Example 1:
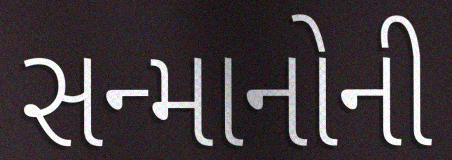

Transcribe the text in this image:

સન્માનોની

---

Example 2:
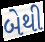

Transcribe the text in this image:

બેથી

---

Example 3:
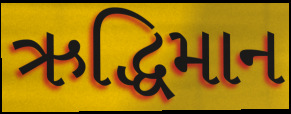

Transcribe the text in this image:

ઋદ્ધિમાન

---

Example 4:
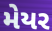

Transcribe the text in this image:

મેયર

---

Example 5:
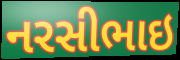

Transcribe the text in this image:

નરસીભાઇ